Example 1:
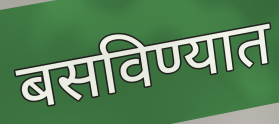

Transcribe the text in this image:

बसविण्यात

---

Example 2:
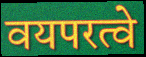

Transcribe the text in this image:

वयपरत्वे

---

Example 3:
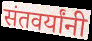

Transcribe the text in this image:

संतवर्यांनी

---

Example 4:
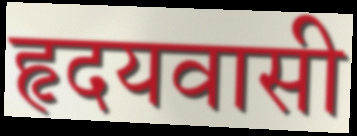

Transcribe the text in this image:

हृदयवासी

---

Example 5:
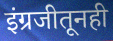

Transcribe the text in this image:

इंग्रजीतूनही